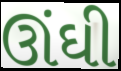
ઊંઘી